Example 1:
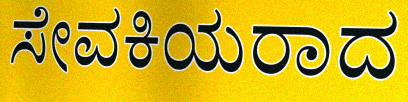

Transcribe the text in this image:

ಸೇವಕಿಯರಾದ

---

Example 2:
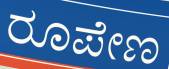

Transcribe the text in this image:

ರೂಪೇಣ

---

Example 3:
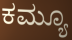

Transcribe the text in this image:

ಕಮ್ಯೂ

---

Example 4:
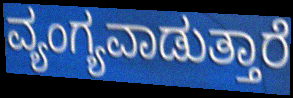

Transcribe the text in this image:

ವ್ಯಂಗ್ಯವಾಡುತ್ತಾರೆ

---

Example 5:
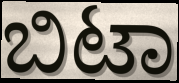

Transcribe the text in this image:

ಬಿಟಾ